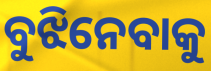
ବୁଝିନେବାକୁ